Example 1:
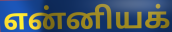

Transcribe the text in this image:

என்னியக்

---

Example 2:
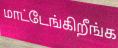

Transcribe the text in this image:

மாட்டேங்கிறீங்க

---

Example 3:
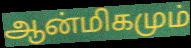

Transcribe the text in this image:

ஆன்மிகமும்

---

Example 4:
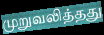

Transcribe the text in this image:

முறுவலித்தது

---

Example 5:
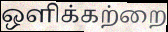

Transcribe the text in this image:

ஒளிக்கற்றை